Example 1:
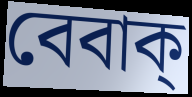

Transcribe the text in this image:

বেবাক্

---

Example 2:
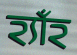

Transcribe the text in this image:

হ্যাঁহ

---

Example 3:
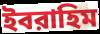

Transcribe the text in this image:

ইবরাহিম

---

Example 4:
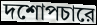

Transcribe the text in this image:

দশোপচারে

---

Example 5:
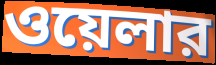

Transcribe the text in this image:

ওয়েলার